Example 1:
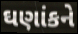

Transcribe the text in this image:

ઘણાંકને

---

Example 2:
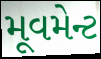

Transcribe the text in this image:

મૂવમેન્ટ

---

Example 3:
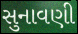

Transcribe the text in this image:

સુનાવણી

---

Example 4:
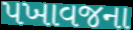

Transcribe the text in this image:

પખાવજના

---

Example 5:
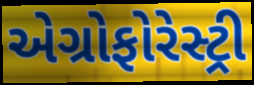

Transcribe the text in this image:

એગ્રોફોરેસ્ટ્રી